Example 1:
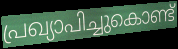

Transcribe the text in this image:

പ്രഖ്യാപിച്ചുകൊണ്ട്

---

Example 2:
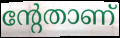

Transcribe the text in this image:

ന്റേതാണ്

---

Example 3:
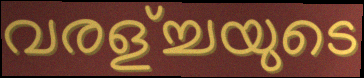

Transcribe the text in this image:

വരള്ച്ചയുടെ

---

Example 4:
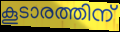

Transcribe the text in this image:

കൂടാരത്തിന്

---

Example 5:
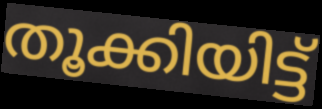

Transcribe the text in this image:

തൂക്കിയിട്ട്